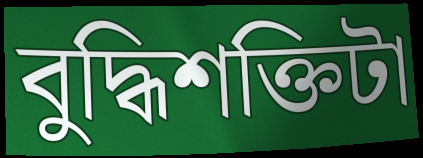
বুদ্ধিশক্তিটা